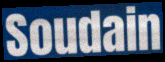
Soudain